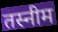
तस्नीम